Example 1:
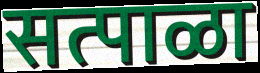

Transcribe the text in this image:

सत्पाळा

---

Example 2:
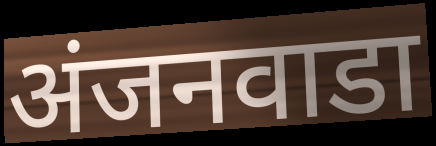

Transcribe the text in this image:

अंजनवाडा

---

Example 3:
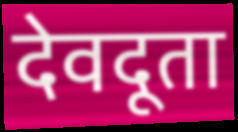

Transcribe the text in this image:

देवदूता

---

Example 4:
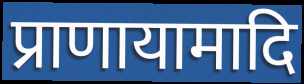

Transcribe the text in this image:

प्राणायामादि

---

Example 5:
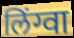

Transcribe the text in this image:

लिंग्वा